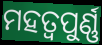
ମହତ୍ୱପୁର୍ଣ୍ଣ